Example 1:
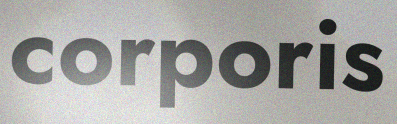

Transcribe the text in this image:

corporis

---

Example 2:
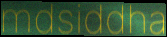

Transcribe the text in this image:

mdsiddha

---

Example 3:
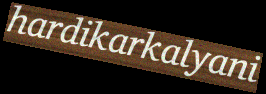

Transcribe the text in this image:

hardikarkalyani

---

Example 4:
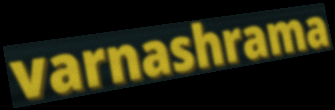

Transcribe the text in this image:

varnashrama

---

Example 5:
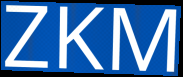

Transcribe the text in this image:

ZKM